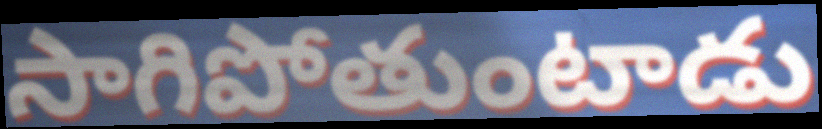
సాగిపోతుంటాడు